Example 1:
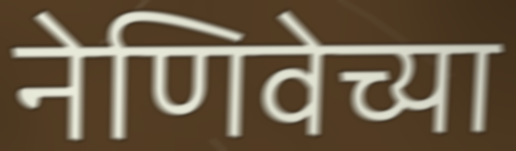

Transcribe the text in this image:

नेणिवेच्या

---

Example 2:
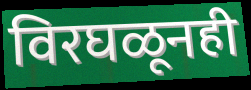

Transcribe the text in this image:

विरघळूनही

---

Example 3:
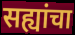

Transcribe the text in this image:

सह्यांचा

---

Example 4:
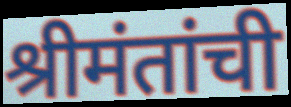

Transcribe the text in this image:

श्रीमंतांची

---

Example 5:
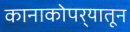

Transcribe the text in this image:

कानाकोपर्‍यातून